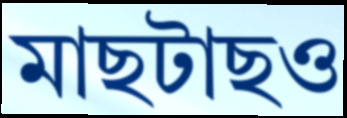
মাছটাছও